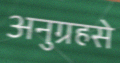
अनुग्रहसे